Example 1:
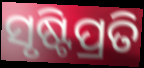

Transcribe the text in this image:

ସୃଷ୍ଟିପ୍ରତି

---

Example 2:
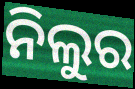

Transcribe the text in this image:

ନିଲୁର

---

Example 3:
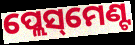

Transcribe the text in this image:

ପ୍ଲେସ୍‌ମେଣ୍ଟ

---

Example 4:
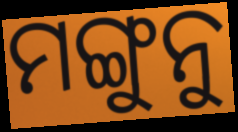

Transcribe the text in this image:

ମଙ୍ଗୁନୁ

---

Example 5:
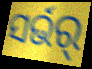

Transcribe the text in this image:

ସର୍ଭର୍